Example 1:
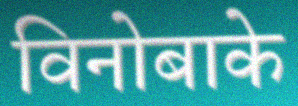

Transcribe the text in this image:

विनोबाके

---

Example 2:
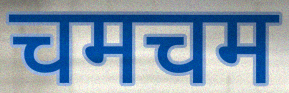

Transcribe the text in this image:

चमचम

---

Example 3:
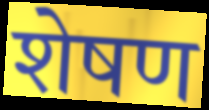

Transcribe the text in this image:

शेषण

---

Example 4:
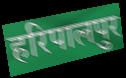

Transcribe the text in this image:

हरिपालपुर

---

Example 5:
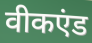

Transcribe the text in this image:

वीकएंड